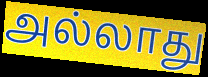
அல்லாது